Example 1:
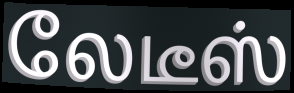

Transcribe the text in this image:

லேடீஸ்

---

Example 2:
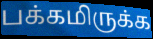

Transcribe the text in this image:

பக்கமிருக்க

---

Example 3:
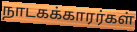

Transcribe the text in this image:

நாடகக்காரர்கள்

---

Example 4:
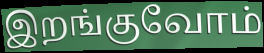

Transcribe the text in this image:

இறங்குவோம்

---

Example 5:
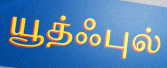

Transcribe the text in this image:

யூத்ஃபுல்